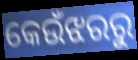
କେଉଁଝରରୁ